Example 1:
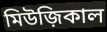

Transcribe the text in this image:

মিউজ়িকাল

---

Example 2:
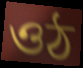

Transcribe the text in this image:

ওঠ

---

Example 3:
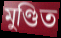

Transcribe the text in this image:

মুণ্ডিত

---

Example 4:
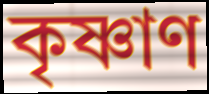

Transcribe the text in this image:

কৃষ্ণাণ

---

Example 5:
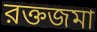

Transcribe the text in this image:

রক্তজমা